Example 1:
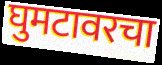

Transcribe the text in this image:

घुमटावरचा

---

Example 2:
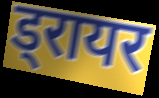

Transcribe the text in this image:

ड्रायर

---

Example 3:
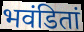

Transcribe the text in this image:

भवंडितां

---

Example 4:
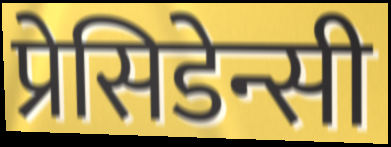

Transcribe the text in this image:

प्रेसिडेन्सी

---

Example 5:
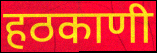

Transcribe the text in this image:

हठकाणी